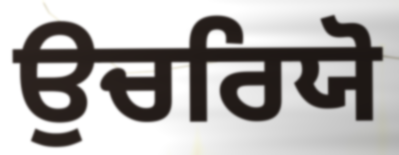
ਉਚਰਿਯੋ